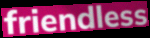
friendless